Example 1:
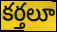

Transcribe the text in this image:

కర్తలూ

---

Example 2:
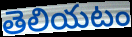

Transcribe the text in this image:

తెలియటం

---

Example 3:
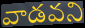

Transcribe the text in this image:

వాడవని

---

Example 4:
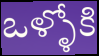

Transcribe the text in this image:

ఒళ్ళోకి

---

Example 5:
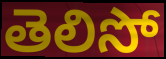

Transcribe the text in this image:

తెలిసో